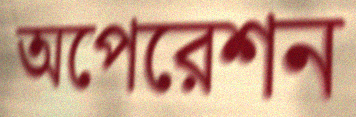
অপেরেশন